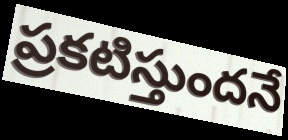
ప్రకటిస్తుందనే